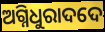
ଅଗ୍ନିଧୁରାଦଦେ